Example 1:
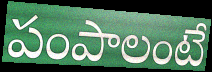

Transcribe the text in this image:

పంపాలంటే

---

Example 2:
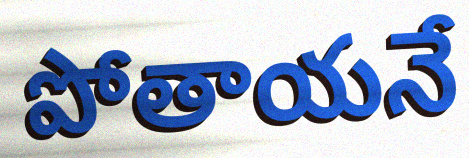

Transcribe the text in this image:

పోతాయనే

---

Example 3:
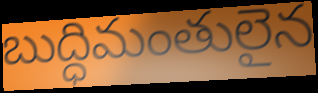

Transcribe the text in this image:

బుద్ధిమంతులైన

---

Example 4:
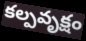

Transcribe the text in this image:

కల్పవృక్షం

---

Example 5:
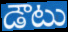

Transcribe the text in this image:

డౌటు